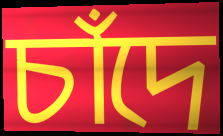
চাঁদে